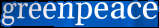
greenpeace